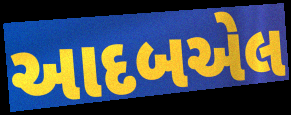
આદબએલ